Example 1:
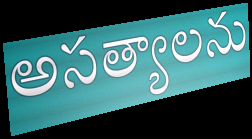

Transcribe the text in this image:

అసత్యాలను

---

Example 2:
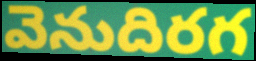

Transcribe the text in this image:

వెనుదిరగ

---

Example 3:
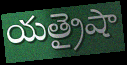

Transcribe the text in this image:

యత్రైషా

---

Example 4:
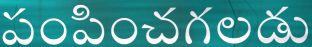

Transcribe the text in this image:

పంపించగలడు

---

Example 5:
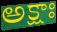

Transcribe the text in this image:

అక్షాః